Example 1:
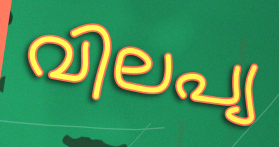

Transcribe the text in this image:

വിലപ്യ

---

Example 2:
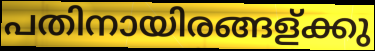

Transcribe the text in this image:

പതിനായിരങ്ങള്ക്കു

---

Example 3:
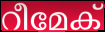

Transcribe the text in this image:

റീമേക്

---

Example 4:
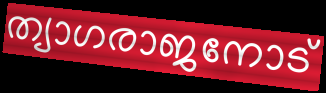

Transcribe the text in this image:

ത്യാഗരാജനോട്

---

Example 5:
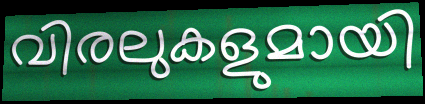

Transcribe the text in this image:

വിരലുകളുമായി